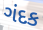
ગંદક